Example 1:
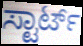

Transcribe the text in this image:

ಸ್ಟಾರ್ಟ್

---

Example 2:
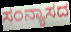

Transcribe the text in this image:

ಸಂನ್ಯಾಸದ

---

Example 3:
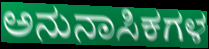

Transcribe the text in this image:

ಅನುನಾಸಿಕಗಳ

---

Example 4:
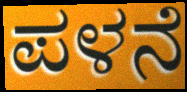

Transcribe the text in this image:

ಪಳನೆ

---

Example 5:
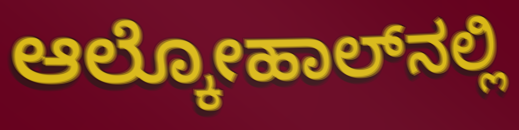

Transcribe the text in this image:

ಆಲ್ಕೋಹಾಲ್‌ನಲ್ಲಿ